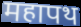
महापथ